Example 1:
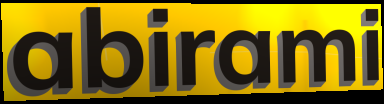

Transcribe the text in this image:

abirami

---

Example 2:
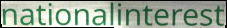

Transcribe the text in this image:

nationalinterest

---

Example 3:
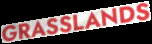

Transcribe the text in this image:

GRASSLANDS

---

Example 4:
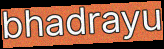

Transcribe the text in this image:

bhadrayu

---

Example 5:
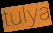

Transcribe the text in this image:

tulya